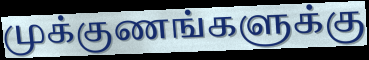
முக்குணங்களுக்கு